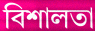
বিশালতা